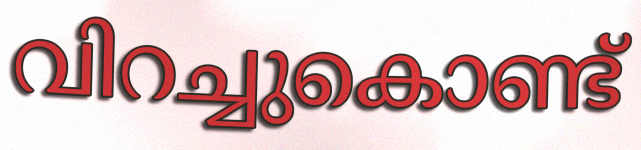
വിറച്ചുകൊണ്ട്